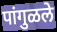
पांगुळले